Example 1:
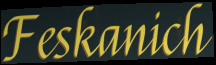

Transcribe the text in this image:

Feskanich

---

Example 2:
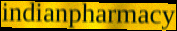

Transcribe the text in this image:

indianpharmacy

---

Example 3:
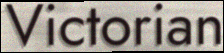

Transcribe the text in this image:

Victorian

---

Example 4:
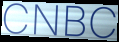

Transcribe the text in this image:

CNBC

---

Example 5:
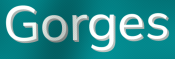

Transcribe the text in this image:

Gorges